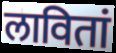
लावितां